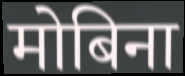
मोबिना